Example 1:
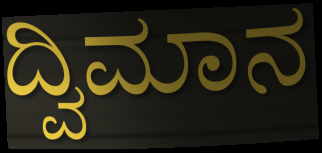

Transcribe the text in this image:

ದ್ವಿಮಾನ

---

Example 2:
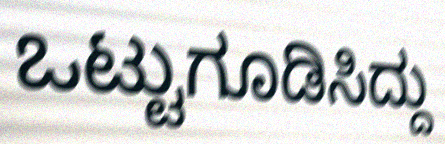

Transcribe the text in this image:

ಒಟ್ಟುಗೂಡಿಸಿದ್ದು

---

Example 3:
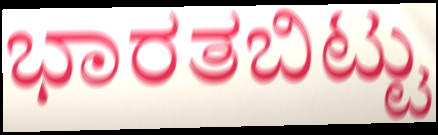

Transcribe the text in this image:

ಭಾರತಬಿಟ್ಟು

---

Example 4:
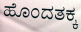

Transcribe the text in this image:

ಹೊಂದತಕ್ಕ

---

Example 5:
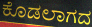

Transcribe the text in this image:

ಕೊಡಲಾಗದ